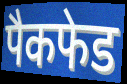
पैकफेड